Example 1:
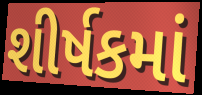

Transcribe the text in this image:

શીર્ષકમાં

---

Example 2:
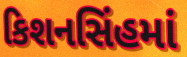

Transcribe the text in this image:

કિશનસિંહમાં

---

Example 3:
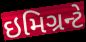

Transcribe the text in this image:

ઇમિગ્રન્ટે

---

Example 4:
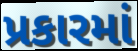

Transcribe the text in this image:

પ્રકારમાં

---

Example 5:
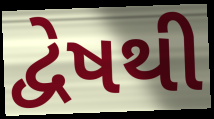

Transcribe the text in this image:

દ્વેષથી